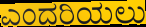
ಎಂದರಿಯಲು